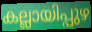
കല്ലായിപ്പുഴ